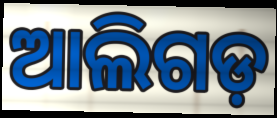
ଆଲିଗଡ଼